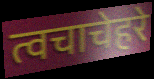
त्वचाचेहरे